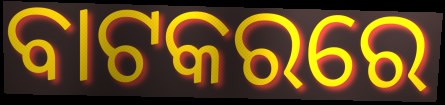
ବାଟକରରେ